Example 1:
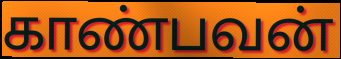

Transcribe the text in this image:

காண்பவன்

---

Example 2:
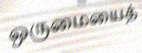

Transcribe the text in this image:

ஒருமையைத்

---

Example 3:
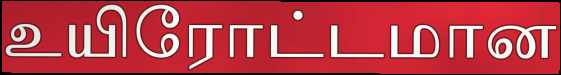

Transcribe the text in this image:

உயிரோட்டமான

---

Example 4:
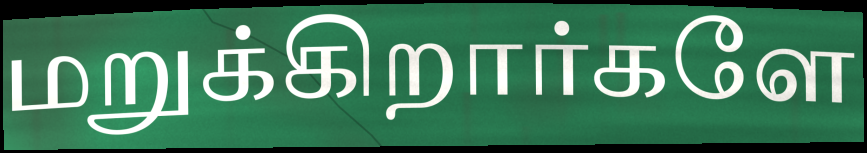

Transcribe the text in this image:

மறுக்கிறார்களே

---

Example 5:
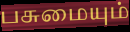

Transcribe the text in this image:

பசுமையும்